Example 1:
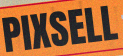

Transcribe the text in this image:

PIXSELL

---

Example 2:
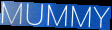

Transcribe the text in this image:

MUMMY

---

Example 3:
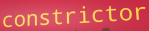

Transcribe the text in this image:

constrictor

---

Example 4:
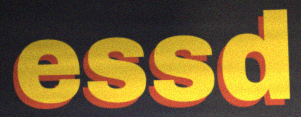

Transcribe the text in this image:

essd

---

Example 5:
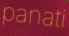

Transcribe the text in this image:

panati